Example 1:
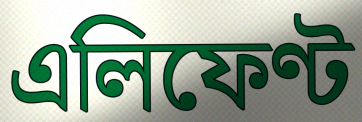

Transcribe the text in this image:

এলিফেণ্ট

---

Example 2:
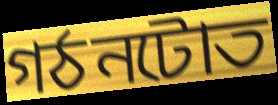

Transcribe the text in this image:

গঠনটোত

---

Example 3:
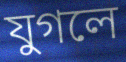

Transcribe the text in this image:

যুগলে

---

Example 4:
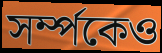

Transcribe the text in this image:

সৰ্ম্পকেও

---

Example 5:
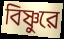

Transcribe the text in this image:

বিষ্ণুৱে